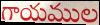
గాయముల